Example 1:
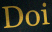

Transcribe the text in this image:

Doi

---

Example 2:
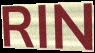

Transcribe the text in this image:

RIN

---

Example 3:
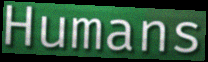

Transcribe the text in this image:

Humans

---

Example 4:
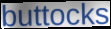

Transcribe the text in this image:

buttocks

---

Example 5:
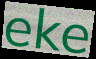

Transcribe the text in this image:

eke